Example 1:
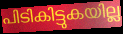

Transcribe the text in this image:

പിടികിട്ടുകയില്ല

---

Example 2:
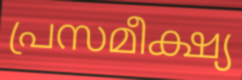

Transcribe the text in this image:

പ്രസമീക്ഷ്യ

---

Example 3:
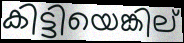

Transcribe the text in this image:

കിട്ടിയെങ്കില്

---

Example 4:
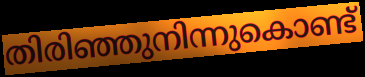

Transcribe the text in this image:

തിരിഞ്ഞുനിന്നുകൊണ്ട്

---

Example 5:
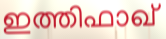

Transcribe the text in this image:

ഇത്തിഫാഖ്